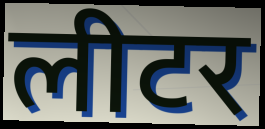
लीटर